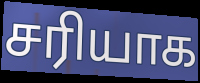
சரியாக